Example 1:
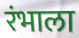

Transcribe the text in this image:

रंभाला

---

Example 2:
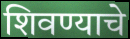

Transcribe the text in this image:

शिवण्याचे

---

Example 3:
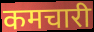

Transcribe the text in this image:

कमचारी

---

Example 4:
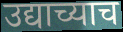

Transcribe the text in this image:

उद्याच्याच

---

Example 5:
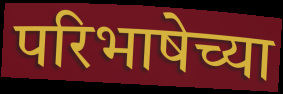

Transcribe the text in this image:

परिभाषेच्या